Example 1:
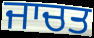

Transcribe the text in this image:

ਜਾਚਤ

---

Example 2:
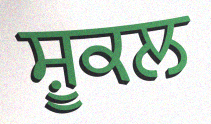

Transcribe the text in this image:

ਸ਼ੂਕਲ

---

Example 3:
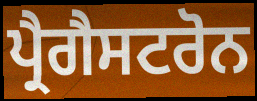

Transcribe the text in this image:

ਪ੍ਰੈਗੈਸਟਰੋਨ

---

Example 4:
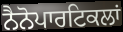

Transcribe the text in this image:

ਨੈਨੋਪਾਰਟਿਕਲਾਂ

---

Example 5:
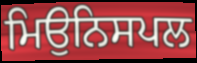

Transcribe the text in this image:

ਮਿਉਨਿਸਪਲ